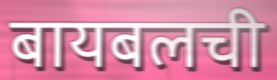
बायबलची